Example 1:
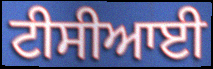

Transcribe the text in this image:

ਟੀਸੀਆਈ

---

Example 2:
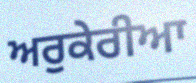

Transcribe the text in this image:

ਅਰੁਕੇਰੀਆ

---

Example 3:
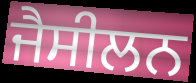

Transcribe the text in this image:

ਜੈਸੀਲਨ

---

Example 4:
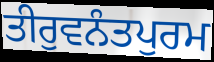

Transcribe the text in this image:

ਤੀਰੁਵਨੰਤਪੁਰਮ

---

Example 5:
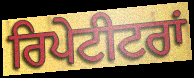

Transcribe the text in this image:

ਰਿਪੇਟੀਟਰਾਂ